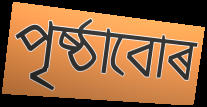
পৃষ্ঠাবোৰ